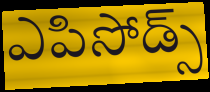
ఎపిసోడ్స్